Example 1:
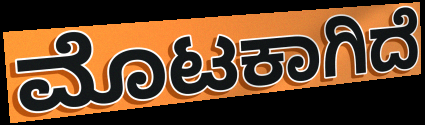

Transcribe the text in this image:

ಮೊಟಕಾಗಿದೆ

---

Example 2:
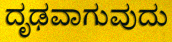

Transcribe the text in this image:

ದೃಢವಾಗುವುದು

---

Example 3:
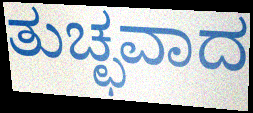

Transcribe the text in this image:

ತುಚ್ಛವಾದ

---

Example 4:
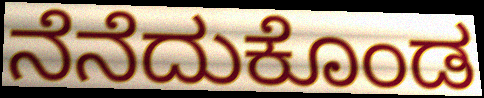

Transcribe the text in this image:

ನೆನೆದುಕೊಂಡ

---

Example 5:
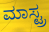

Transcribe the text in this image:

ಮಾಸ್ಟ್ರ